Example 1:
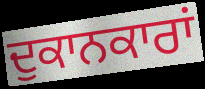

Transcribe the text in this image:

ਦੁਕਾਨਕਾਰਾਂ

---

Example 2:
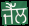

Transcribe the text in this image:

ਜੈੱਲ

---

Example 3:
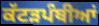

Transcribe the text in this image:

ਕੱਟੜਪੰਥੀਆਂ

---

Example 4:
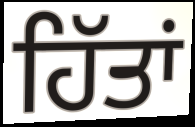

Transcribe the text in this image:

ਹਿੱਤਾਂ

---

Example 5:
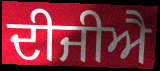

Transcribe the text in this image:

ਦੀਜੀਐ